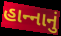
હાન્‍નાનું